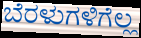
ಬೆರಳುಗಳಿಗೆಲ್ಲ